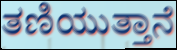
ತಣಿಯುತ್ತಾನೆ